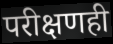
परीक्षणही